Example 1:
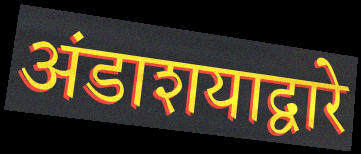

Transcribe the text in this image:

अंडाशयाद्वारे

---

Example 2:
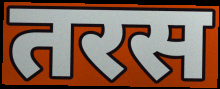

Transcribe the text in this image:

तरस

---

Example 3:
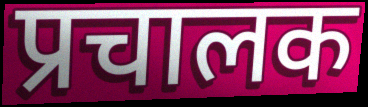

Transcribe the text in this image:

प्रचालक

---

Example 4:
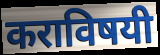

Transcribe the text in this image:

कराविषयी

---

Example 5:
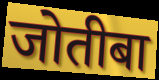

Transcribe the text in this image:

जोतीबा